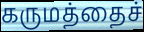
கருமத்தைச்